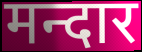
मन्दार